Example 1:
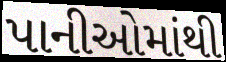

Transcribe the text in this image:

પાનીઓમાંથી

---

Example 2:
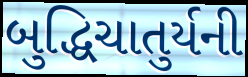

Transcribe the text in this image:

બુદ્ધિચાતુર્યની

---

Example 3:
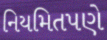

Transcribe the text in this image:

નિયમિતપણે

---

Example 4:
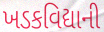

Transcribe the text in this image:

ખડકવિદ્યાની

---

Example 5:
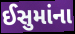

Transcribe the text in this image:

ઈસુમાંના